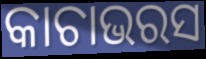
କାଚାଭରସ